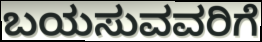
ಬಯಸುವವರಿಗೆ